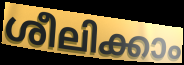
ശീലിക്കാം